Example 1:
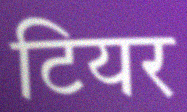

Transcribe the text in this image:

टियर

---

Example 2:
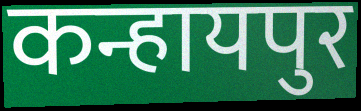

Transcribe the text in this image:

कन्हायपुर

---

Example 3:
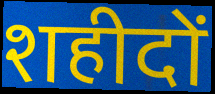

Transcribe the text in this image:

शहीदों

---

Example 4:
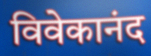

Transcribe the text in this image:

विवेकानंद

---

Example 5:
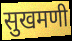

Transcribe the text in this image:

सुखमणी